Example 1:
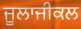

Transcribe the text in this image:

ਜੂਲਾਜੀਕਲ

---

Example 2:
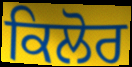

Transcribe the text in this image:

ਕਿਲੋਰ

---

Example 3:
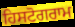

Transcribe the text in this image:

ਹਿਸਟੋਗਰਾਮ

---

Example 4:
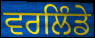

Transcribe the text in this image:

ਵਰਲਿੰਡੇ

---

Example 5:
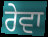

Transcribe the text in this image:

ਰੇਵਾ